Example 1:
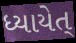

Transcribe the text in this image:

ધ્યાયેત્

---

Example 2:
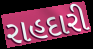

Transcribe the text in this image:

રાહદારી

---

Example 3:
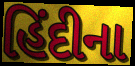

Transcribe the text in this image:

હિંદીના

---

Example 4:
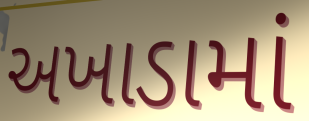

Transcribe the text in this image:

અખાડામાં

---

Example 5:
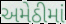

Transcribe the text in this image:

અમેઠીમાં